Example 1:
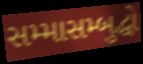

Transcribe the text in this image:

સમ્માસમ્બુદ્ધો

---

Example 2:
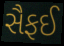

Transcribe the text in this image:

સૈફઈ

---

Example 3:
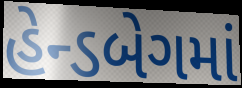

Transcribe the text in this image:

હેન્ડબેગમાં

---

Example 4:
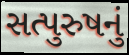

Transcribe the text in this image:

સત્પુરુષનું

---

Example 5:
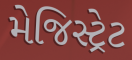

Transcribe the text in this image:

મેજિસ્ટ્રેટ